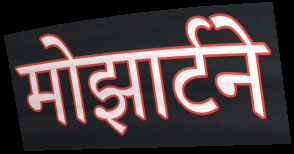
मोझार्टने